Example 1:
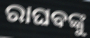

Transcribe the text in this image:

ରାଘବଙ୍କୁ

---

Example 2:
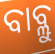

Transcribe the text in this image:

ବାବ୍ଲୁ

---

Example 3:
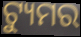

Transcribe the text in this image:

ଟ୍ୟୁମର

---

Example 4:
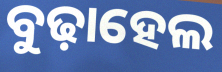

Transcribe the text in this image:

ବୁଢ଼ାହେଲ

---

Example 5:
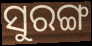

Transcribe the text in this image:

ସୁରଙ୍ଗ